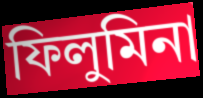
ফিলুমিনা